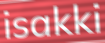
isakki